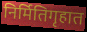
निर्मितिगृहात